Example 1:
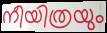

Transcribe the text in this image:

നീയിത്രയും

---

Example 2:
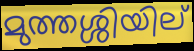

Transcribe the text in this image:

മുത്തശ്ശിയില്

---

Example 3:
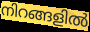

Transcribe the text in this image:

നിറങ്ങളിൽ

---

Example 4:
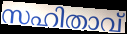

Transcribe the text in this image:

സഹിതാവ്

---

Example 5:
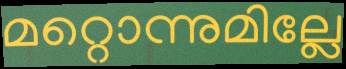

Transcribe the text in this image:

മറ്റൊന്നുമില്ലേ